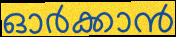
ഓർക്കാൻ